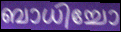
ബാധിച്ചോ